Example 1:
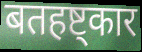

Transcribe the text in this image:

बतहष्ट्कार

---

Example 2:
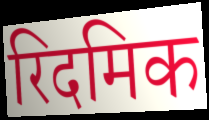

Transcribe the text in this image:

रिदमिक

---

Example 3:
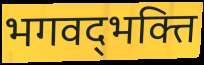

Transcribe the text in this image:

भगवद्भक्ति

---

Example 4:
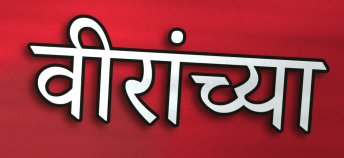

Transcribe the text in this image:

वीरांच्या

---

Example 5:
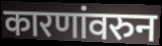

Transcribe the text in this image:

कारणांवरुन